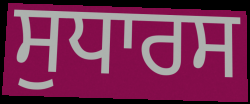
ਸੁਧਾਰਸ